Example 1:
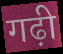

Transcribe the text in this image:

गढ़ी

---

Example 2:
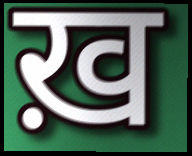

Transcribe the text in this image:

ख़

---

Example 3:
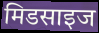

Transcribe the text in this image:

मिडसाइज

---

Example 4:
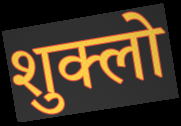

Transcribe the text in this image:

शुक्लो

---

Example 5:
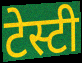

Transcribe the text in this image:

टेस्टी